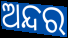
ଅନ୍ଦର